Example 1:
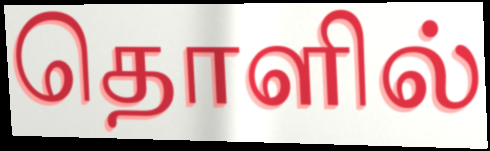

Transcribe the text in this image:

தொளில்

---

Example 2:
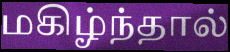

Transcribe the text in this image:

மகிழ்ந்தால்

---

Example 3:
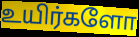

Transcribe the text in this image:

உயிர்களோ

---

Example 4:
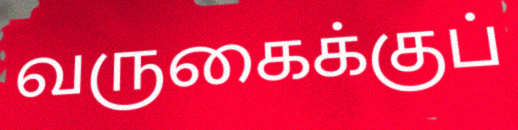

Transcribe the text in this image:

வருகைக்குப்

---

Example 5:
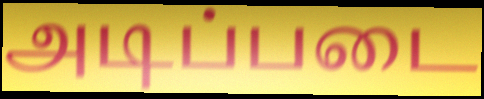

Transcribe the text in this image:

அடிப்படை